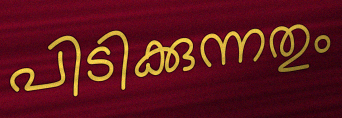
പിടിക്കുന്നതും